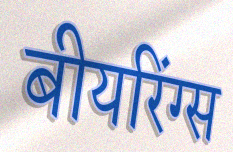
बीयरिंग्स